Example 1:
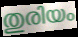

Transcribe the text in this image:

തുരിയം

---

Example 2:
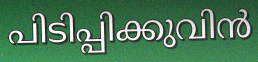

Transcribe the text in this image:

പിടിപ്പിക്കുവിൻ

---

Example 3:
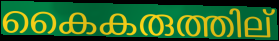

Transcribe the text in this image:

കൈകരുത്തില്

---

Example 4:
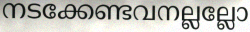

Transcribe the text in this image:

നടക്കേണ്ടവനല്ലല്ലോ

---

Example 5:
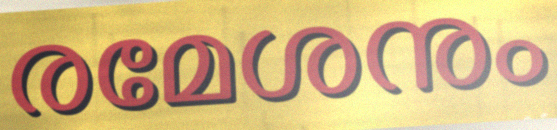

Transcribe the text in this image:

രമേശനും